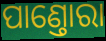
ପାଣ୍ତୋରା